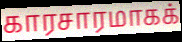
காரசாரமாகக்